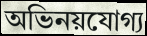
অভিনয়যোগ্য